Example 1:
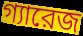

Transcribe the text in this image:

গ্যারেজ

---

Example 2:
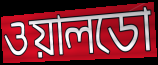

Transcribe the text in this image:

ওয়ালডো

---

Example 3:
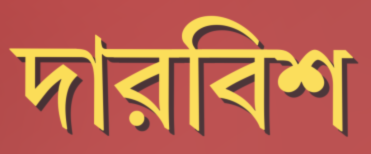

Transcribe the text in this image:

দারবিশ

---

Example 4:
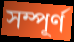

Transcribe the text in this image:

সম্পূর্ণ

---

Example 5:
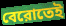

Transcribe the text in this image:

বেরোতেই